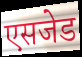
एसजेड